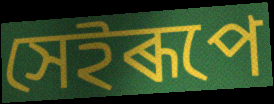
সেইৰূপে